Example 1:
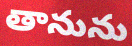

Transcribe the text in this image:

తానును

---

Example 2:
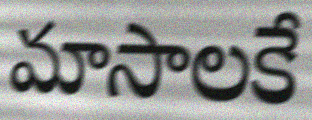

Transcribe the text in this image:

మాసాలకే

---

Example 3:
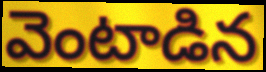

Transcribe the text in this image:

వెంటాడిన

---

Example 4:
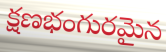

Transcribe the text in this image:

క్షణభంగురమైన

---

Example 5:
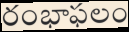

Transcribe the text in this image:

రంభాఫలం